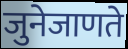
जुनेजाणते